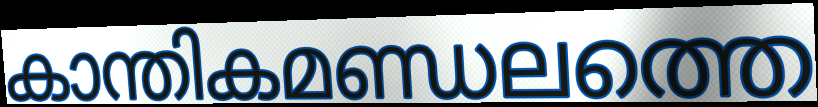
കാന്തികമണ്ഡലത്തെ